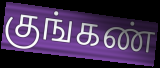
குங்கண்